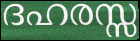
ദഹരസ്സ